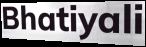
Bhatiyali